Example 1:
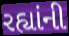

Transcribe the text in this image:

રહ્યાંની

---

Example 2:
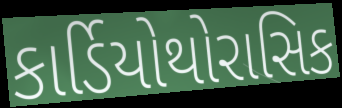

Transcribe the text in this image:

કાર્ડિયોથોરાસિક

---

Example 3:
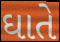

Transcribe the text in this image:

ઘાતે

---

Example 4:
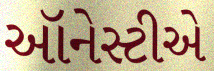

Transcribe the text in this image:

ઑનેસ્ટીએ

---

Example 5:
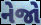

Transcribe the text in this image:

નેજો